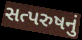
સત્પરુષનું